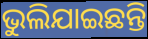
ଭୁଲିଯାଇଛନ୍ତି